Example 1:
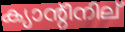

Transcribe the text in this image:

ക്യാന്റീനില്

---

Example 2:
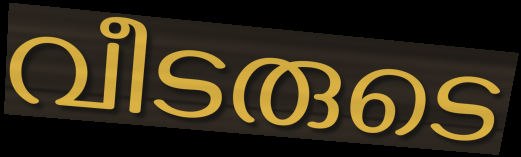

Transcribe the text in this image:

വീടരുടെ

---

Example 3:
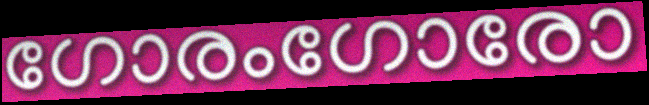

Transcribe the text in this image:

ഗോരംഗോരോ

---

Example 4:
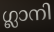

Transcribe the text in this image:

ഗ്ലാനി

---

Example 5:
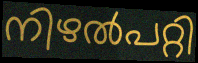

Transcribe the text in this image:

നിഴൽപറ്റി